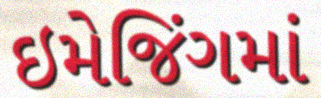
ઇમેજિંગમાં